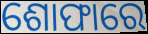
ଶୋଫାରେ